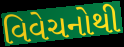
વિવેચનોથી